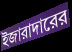
ইজারাদারের